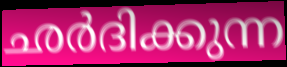
ഛർദിക്കുന്ന